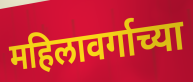
महिलावर्गाच्या